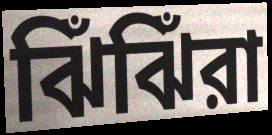
ঝিঁঝিঁরা